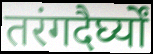
तरंगदैर्घ्यों